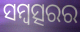
ସମ୍ବତ୍ସରର